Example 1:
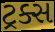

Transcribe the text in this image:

ટ્રક્સ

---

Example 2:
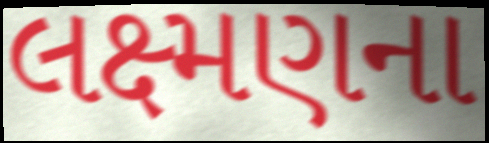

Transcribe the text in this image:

લક્ષ્મણના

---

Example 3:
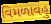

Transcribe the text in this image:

વિમળાવહુ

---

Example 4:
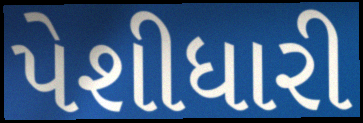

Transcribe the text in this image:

પેશીધારી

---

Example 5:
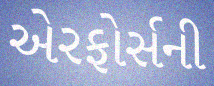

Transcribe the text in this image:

એરફોર્સની